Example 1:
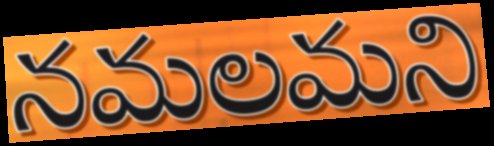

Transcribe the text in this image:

నమలమని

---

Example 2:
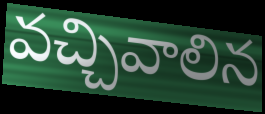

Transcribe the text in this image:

వచ్చివాలిన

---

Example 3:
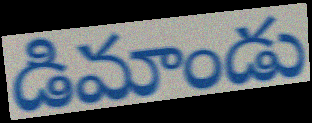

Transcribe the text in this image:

డిమాండు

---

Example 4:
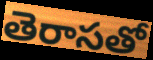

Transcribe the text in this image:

తెరాసతో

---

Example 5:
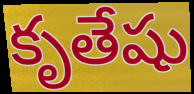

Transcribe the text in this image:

కృతేషు